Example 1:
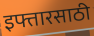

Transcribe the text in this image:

इफ्तारसाठी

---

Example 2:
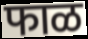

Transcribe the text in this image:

फाळ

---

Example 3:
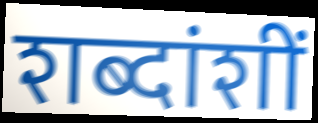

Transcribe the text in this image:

शब्दांशीं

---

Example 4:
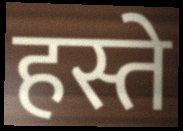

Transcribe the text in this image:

हस्ते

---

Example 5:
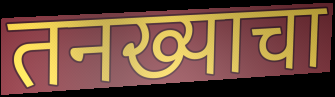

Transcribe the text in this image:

तनख्याचा